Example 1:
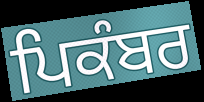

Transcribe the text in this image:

ਪਿਕੰਬਰ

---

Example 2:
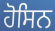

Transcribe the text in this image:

ਹੋਸਿਨ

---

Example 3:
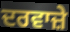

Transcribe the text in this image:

ਦਰਵਾਜ਼ੇ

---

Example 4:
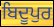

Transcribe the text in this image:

ਬਿਦੂਪੁਰ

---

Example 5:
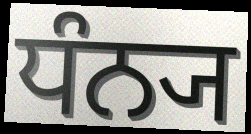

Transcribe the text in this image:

ਧੰਨ੍ਯ